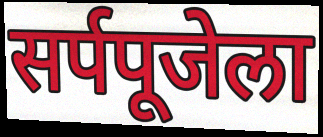
सर्पपूजेला